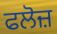
ਫਲੋਜ਼